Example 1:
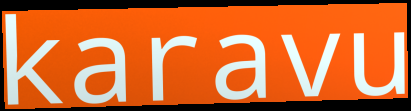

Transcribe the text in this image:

karavu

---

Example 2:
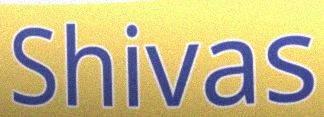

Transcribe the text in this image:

Shivas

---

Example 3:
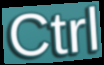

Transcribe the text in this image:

Ctrl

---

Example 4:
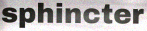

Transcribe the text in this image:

sphincter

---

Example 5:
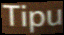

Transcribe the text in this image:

Tipu